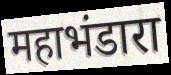
महाभंडारा